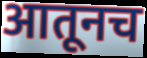
आतूनच